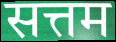
सत्तम